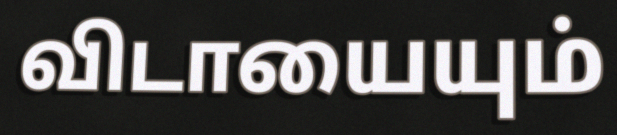
விடாயையும்